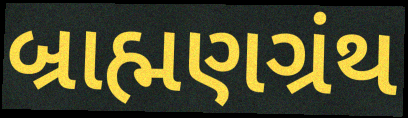
બ્રાહ્મણગ્રંથ